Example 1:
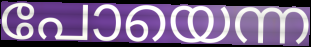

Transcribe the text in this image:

പോയെന്ന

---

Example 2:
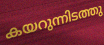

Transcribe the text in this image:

കയറുന്നിടത്തു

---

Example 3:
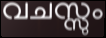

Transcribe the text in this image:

വചസ്സും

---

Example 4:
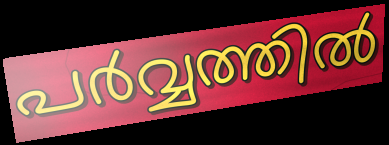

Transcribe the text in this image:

പർവ്വത്തിൽ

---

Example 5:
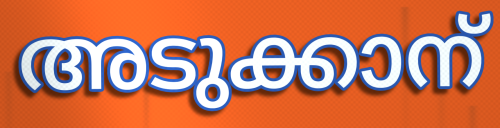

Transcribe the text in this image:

അടുക്കാന്